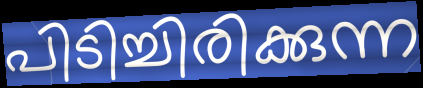
പിടിച്ചിരിക്കുന്ന